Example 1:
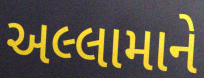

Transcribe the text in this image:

અલ્લામાને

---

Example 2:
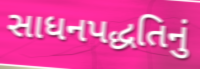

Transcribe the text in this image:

સાધનપદ્ધતિનું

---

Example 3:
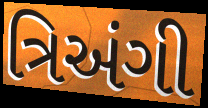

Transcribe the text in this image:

ત્રિઅંગી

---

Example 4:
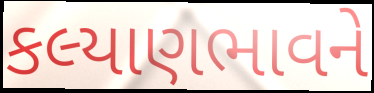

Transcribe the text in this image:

કલ્યાણભાવને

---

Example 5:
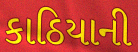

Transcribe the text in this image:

કાઠિયાની